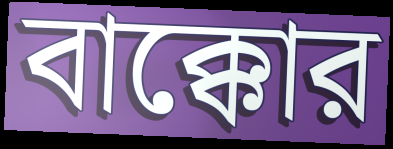
বাক্কোর